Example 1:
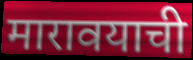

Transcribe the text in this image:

मारावयाची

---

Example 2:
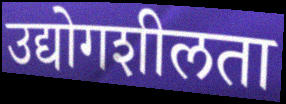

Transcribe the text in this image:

उद्योगशीलता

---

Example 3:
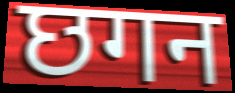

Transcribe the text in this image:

छगन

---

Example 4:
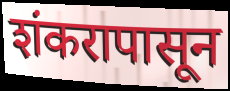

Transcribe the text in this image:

शंकरापासून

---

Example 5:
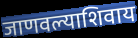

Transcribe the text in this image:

जाणवल्याशिवाय